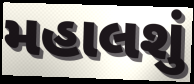
મહાલશું